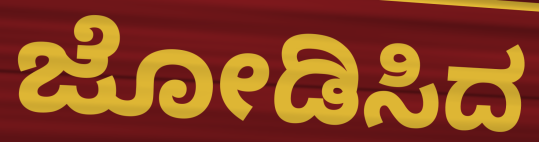
ಜೋಡಿಸಿದ